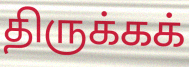
திருக்கக்